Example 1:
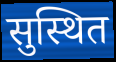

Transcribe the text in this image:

सुस्थित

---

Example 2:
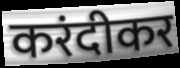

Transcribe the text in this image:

करंदीकर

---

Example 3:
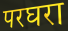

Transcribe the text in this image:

परघरा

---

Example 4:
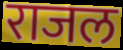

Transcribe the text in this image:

राजल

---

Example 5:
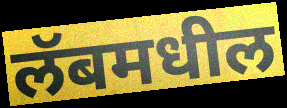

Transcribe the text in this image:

लॅबमधील